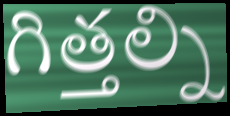
గిత్తల్ని